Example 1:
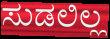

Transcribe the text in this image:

ಸುಡಲಿಲ್ಲ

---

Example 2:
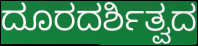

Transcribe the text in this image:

ದೂರದರ್ಶಿತ್ವದ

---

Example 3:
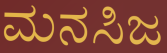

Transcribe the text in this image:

ಮನಸಿಜ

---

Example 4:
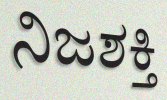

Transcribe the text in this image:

ನಿಜಶಕ್ತಿ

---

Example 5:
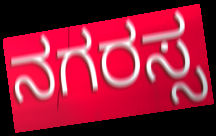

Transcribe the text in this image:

ನಗರಸ್ಸ